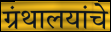
ग्रंथालयांचे